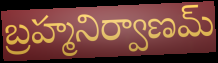
బ్రహ్మనిర్వాణమ్